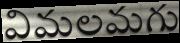
విమలమగు